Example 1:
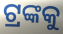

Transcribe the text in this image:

ଟ୍ରଙ୍କକୁ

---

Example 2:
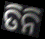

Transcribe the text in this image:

ତିନି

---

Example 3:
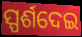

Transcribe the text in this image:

ସ୍ପର୍ଶଦେଇ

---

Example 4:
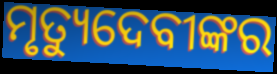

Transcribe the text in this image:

ମୃତ୍ୟୁଦେବୀଙ୍କର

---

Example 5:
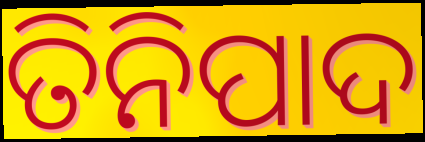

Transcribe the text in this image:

ତିନିପାଦ